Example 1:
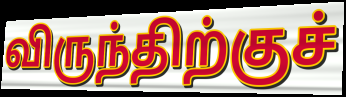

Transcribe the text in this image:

விருந்திற்குச்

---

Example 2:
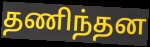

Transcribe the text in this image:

தணிந்தன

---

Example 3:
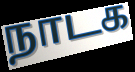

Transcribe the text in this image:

நாடக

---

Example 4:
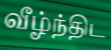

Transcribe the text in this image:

வீழ்ந்திட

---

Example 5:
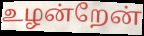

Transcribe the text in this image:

உழன்றேன்